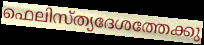
ഫെലിസ്ത്യദേശത്തേക്കു